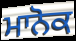
ਮਾਨੋਕ